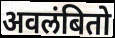
अवलंबितो